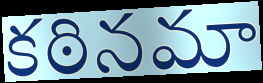
కఠినమా